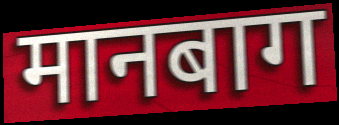
मानबाग